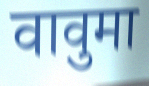
वावुमा